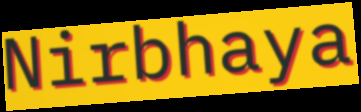
Nirbhaya